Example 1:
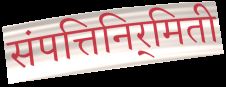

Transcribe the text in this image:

संपत्तिनिर्मिती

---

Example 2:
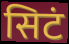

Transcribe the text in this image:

सिटं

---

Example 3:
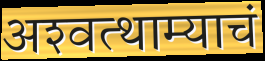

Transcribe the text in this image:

अश्वत्थाम्याचं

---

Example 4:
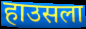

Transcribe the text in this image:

हाउसला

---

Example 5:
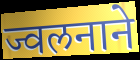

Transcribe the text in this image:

ज्वलनाने